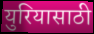
युरियासाठी